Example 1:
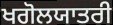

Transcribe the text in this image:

ਖਗੋਲਯਾਤਰੀ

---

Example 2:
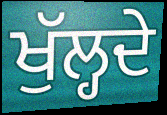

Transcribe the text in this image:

ਖੁੱਲ੍ਹਦੇ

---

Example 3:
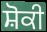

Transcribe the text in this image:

ਸ਼ੋਕੀ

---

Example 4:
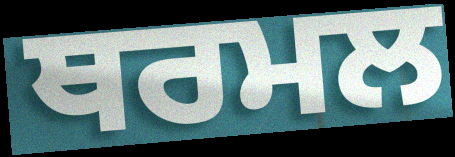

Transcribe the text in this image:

ਥਰਮਲ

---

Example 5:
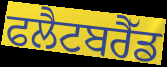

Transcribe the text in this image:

ਫਲੈਟਬਰੈੱਡ